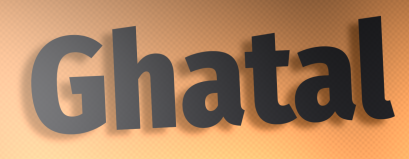
Ghatal